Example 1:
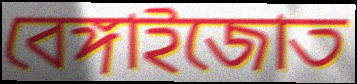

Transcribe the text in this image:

বেঙ্গাইজোত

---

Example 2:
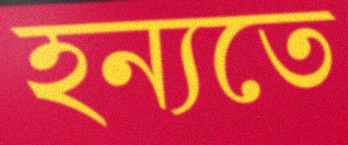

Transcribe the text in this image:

হন্যতে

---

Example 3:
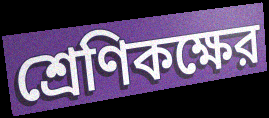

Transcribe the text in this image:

শ্রেণিকক্ষের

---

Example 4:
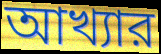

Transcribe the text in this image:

আখ্যার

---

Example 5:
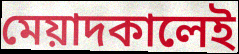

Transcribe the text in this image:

মেয়াদকালেই